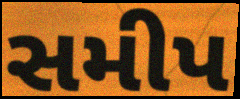
સમીપ